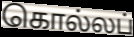
கொல்லப்